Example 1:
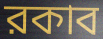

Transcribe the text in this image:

রকাব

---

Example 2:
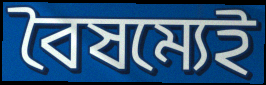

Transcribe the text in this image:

বৈষম্যেই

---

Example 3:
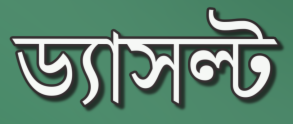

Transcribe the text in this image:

ড্যাসল্ট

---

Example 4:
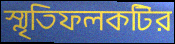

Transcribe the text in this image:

স্মৃতিফলকটির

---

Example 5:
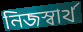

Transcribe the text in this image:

নিজস্বার্থ